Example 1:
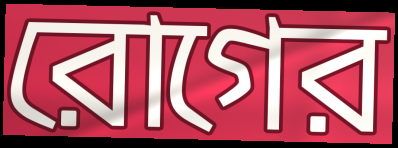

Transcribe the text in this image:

রোগের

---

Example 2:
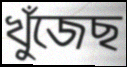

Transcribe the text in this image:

খুঁজেছ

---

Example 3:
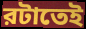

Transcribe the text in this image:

রটাতেই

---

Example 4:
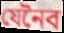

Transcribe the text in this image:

যেনৈব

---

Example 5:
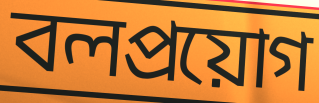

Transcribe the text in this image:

বলপ্রয়োগ